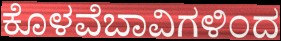
ಕೊಳವೆಬಾವಿಗಳಿಂದ